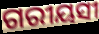
ଗରୀୟସୀ